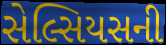
સેલ્સિયસની